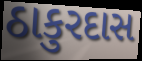
ઠાકુરદાસ